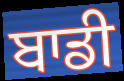
ਬਾਡੀ